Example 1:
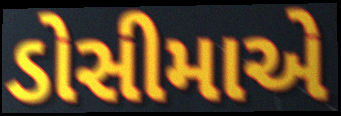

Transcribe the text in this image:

ડોસીમાએ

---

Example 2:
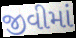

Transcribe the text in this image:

જીવીમાં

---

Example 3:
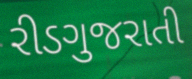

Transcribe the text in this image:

રીડગુજરાતી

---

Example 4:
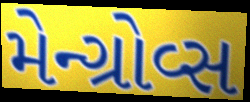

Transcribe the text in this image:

મેન્ગ્રોવ્સ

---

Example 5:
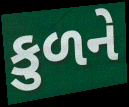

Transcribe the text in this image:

કુળને